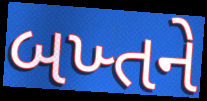
બખ્તને